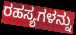
ರಹಸ್ಯಗಳನ್ನು